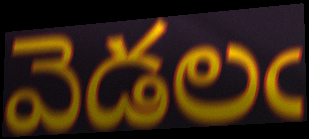
వెడలఁ